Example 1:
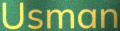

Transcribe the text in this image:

Usman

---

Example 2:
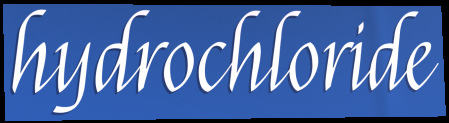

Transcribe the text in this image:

hydrochloride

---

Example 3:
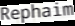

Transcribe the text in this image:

Rephaim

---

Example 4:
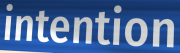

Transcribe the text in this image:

intention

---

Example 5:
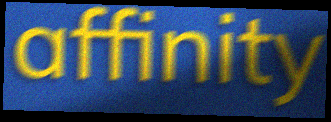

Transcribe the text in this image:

affinity